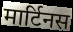
मार्टिनस